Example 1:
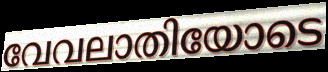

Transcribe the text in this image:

വേവലാതിയോടെ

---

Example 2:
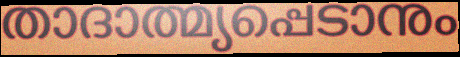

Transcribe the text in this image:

താദാത്മ്യപ്പെടാനും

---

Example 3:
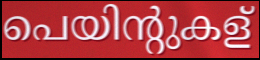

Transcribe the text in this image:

പെയിന്റുകള്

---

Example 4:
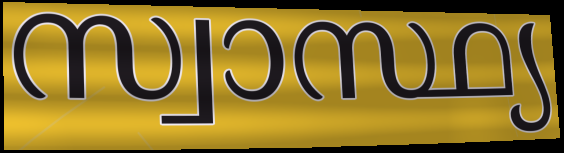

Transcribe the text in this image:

സ്വാസ്ഥ്യ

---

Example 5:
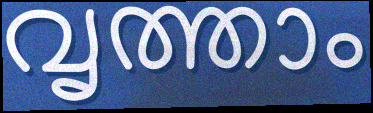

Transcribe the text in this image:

വൃത്താം